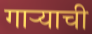
गाऱ्याची